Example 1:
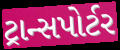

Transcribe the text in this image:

ટ્રાન્સપોર્ટર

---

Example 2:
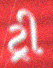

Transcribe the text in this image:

ટ્રી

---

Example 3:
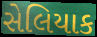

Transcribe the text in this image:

સેલિયાક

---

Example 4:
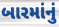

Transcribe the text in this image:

બારમાંનું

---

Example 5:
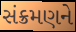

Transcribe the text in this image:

સંક્રમણને